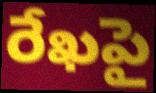
రేఖపై